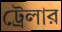
ট্রেলার